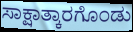
ಸಾಕ್ಷಾತ್ಕಾರಗೊಂಡು